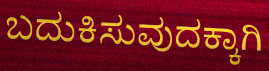
ಬದುಕಿಸುವುದಕ್ಕಾಗಿ